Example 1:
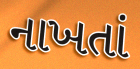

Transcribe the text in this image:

નાખતાં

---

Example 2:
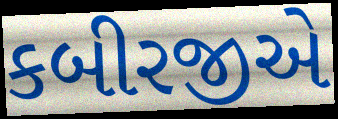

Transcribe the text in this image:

કબીરજીએ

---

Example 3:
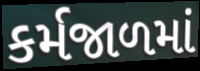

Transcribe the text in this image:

કર્મજાળમાં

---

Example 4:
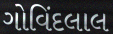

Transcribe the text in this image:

ગોવિંદલાલ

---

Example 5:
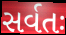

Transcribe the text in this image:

સર્વતઃ